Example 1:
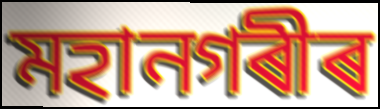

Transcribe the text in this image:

মহানগৰীৰ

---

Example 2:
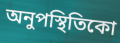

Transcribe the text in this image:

অনুপস্থিতিকো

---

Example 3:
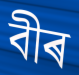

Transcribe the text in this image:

বীৰ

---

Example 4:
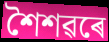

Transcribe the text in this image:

শৈশৱৰে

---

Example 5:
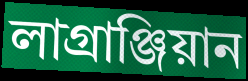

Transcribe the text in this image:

লাগ্ৰাঞ্জিয়ান